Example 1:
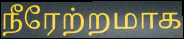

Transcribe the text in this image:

நீரேற்றமாக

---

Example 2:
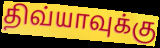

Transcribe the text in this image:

திவ்யாவுக்கு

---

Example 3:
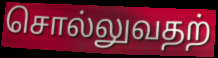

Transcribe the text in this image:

சொல்லுவதற்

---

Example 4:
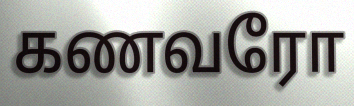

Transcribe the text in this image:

கணவரோ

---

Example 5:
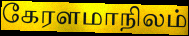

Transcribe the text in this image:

கேரளமாநிலம்